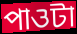
পাওটা